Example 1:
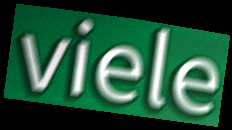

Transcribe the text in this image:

viele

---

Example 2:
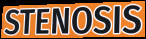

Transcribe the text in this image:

STENOSIS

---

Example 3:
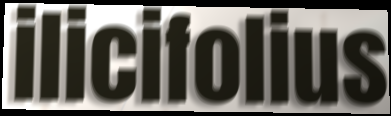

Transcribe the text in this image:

ilicifolius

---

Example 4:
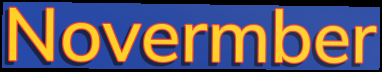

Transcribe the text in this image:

Novermber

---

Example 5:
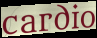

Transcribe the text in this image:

cardio